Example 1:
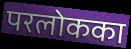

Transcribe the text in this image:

परलोकका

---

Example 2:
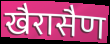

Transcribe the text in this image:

खैरासैण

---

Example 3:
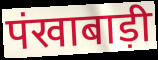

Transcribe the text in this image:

पंखाबाड़ी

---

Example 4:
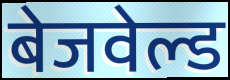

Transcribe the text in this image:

बेजवेल्ड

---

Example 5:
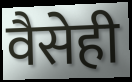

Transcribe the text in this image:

वैसेही